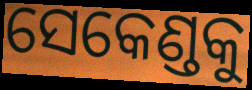
ସେକେଣ୍ଡକୁ